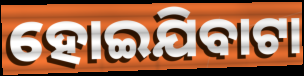
ହୋଇଯିବାଟା